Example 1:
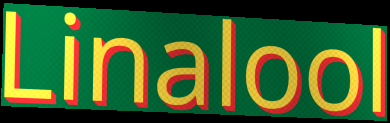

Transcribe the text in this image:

Linalool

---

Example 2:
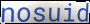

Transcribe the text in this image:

nosuid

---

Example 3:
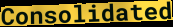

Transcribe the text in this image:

Consolidated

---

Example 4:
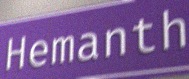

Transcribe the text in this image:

Hemanth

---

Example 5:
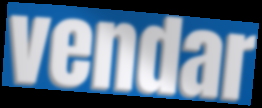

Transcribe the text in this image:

vendar